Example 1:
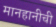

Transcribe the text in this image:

मानहानीची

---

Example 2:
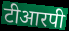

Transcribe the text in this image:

टीआरपी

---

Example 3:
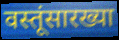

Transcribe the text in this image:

वस्तूंसारख्या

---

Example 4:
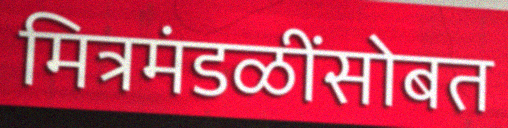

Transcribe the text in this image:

मित्रमंडळींसोबत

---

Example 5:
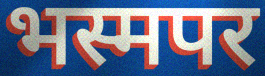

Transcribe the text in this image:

भस्मपर